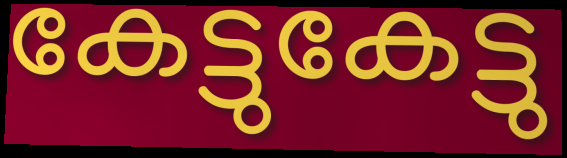
കേട്ടുകേട്ടു